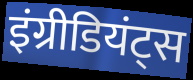
इंग्रीडियंट्स